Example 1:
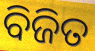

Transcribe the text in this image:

ବିଜିତ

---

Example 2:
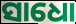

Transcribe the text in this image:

ସାଧୋ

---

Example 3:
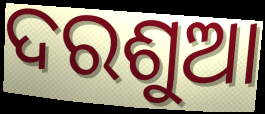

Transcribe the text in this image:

ଦରଶୁଆ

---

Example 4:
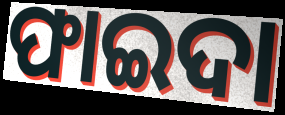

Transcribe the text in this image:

ଫାଇଦା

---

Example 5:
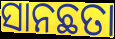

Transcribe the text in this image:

ସାନଛତା